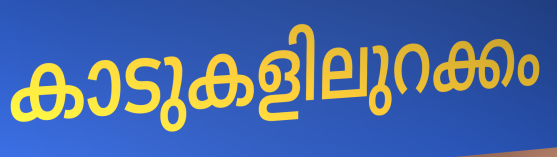
കാടുകളിലുറക്കം